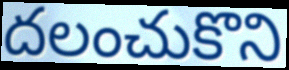
దలంచుకొని